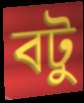
বটু